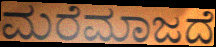
ಮರೆಮಾಜದೆ